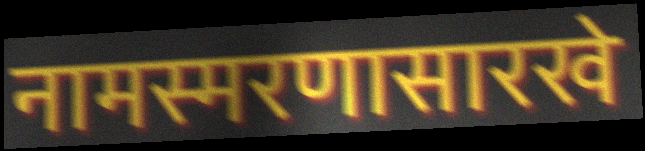
नामस्मरणासारखे